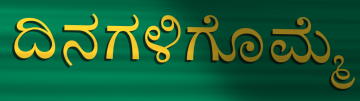
ದಿನಗಳಿಗೊಮ್ಮೆ